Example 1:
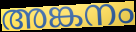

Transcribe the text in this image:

അങ്കനം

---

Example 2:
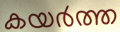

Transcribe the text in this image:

കയർത്ത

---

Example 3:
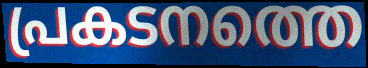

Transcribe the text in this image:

പ്രകടനത്തെ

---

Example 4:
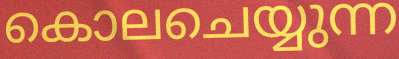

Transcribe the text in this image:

കൊലചെയ്യുന്ന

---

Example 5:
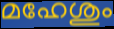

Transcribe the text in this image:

മഹേശും